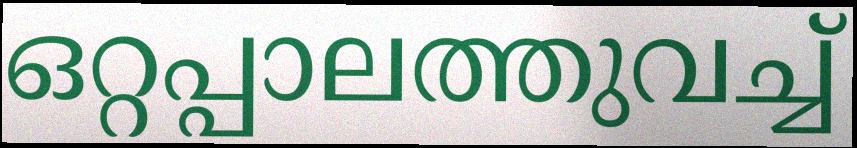
ഒറ്റപ്പാലത്തുവച്ച്